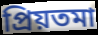
প্রিয়তমা